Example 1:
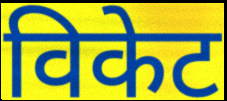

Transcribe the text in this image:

विकेट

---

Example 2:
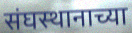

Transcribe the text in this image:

संघस्थानाच्या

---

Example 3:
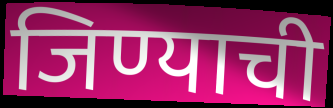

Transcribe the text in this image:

जिण्याची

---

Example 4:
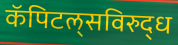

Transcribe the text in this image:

कॅपिटल्सविरुद्ध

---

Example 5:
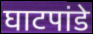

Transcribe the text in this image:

घाटपांडे